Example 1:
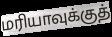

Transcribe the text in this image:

மரியாவுக்குத்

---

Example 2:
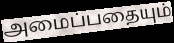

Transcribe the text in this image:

அமைப்பதையும்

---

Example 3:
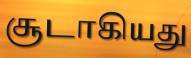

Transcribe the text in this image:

சூடாகியது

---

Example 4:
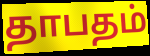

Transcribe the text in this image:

தாபதம்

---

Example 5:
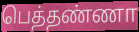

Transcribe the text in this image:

பெத்தண்ணா